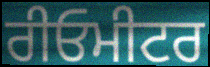
ਰੀਓਮੀਟਰ